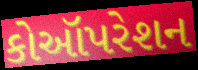
કોઑપરેશન